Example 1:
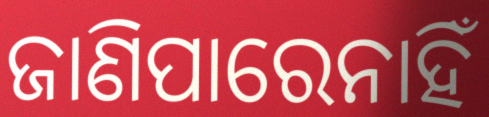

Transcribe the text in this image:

ଜାଣିପାରେନାହିଁ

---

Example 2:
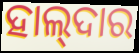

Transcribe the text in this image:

ହାଲ୍‌ଦାର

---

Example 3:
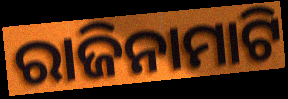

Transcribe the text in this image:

ରାଜିନାମାଟି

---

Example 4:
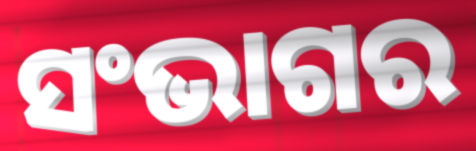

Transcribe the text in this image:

ସଂଭାଗର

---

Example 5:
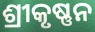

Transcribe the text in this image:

ଶ୍ରୀକୃଷ୍ଣନ